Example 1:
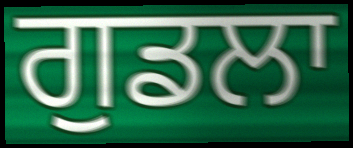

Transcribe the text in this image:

ਗੁਡਲਾ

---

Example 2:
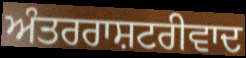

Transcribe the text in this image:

ਅੰਤਰਰਾਸ਼ਟਰੀਵਾਦ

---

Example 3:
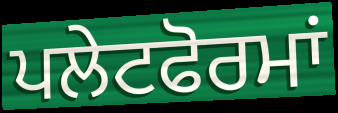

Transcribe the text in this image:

ਪਲੇਟਫੋਰਮਾਂ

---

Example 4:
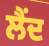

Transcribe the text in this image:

ਲੈਂਦ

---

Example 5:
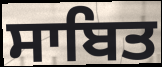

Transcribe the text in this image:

ਸਾਬਿਤ